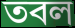
তবল